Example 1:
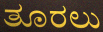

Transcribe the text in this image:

ತೂರಲು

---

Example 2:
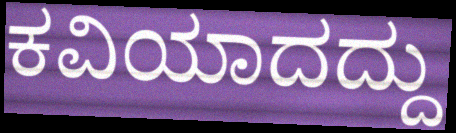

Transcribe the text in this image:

ಕವಿಯಾದದ್ದು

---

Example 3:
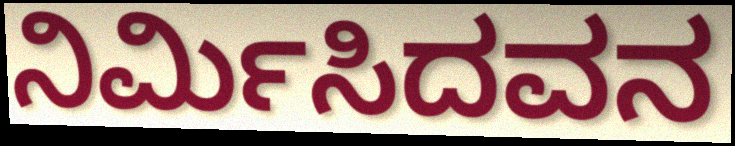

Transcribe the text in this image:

ನಿರ್ಮಿಸಿದವನ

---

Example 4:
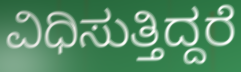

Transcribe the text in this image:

ವಿಧಿಸುತ್ತಿದ್ದರೆ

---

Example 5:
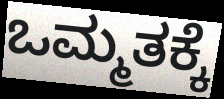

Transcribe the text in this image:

ಒಮ್ಮತಕ್ಕೆ